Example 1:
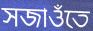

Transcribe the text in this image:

সজাওঁতে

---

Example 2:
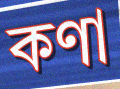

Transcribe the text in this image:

কণা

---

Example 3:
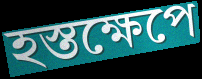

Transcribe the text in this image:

হস্তক্ষেপে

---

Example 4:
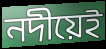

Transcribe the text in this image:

নদীয়েই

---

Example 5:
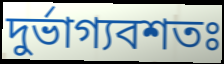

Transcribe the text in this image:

দুৰ্ভাগ্যবশতঃ